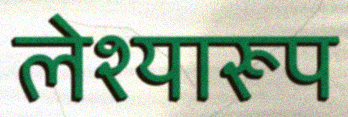
लेश्यारूप